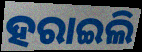
ହରାଇଲି